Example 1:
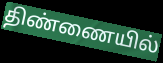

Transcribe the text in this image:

திண்ணையில்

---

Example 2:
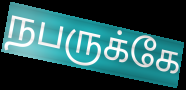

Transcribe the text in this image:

நபருக்கே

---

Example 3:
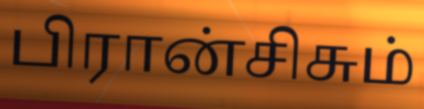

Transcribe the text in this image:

பிரான்சிசும்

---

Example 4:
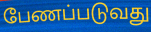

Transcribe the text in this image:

பேணப்படுவது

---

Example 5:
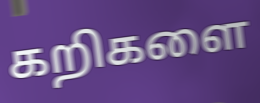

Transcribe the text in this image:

கறிகளை